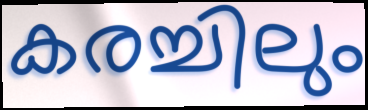
കരച്ചിലും